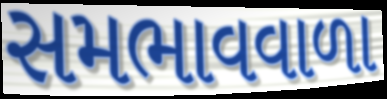
સમભાવવાળા